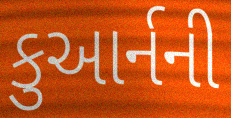
કુઆર્નની